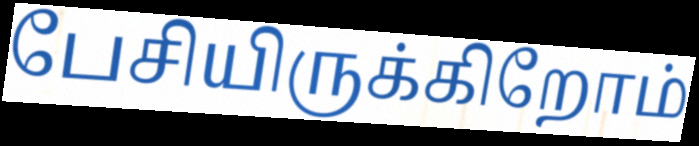
பேசியிருக்கிறோம்